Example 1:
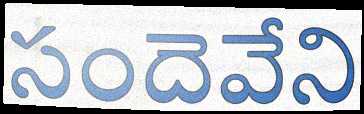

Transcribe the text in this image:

సందెవేని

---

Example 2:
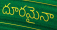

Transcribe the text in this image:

దూరమైనా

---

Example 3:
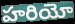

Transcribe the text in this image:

హరియో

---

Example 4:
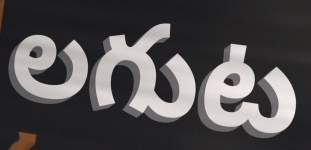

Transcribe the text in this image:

లగుట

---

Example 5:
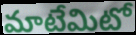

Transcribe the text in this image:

మాటేమిటో